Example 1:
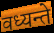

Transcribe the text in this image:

वध्यन्ते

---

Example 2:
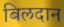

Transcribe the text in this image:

बिलदान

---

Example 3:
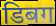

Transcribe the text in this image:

डिबग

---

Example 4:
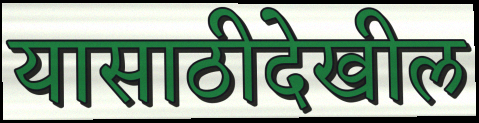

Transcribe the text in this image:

यासाठीदेखील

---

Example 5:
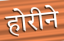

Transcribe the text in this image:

होरीने